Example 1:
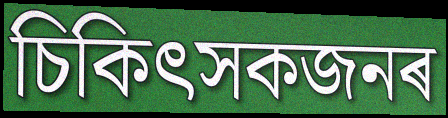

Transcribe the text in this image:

চিকিৎসকজনৰ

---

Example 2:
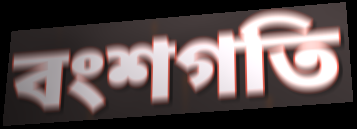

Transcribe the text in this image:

বংশগতি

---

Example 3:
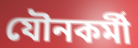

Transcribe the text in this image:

যৌনকৰ্মী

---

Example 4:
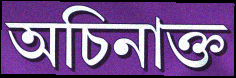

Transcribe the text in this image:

অচিনাক্ত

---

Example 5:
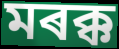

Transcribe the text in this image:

মৰক্ক